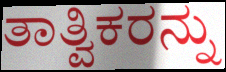
ತಾತ್ವಿಕರನ್ನು